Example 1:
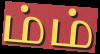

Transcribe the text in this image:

ம்ம்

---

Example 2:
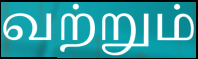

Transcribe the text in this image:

வற்றும்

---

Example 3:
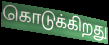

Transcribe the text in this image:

கொடுக்கிறது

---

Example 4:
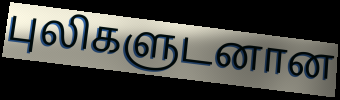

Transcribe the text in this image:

புலிகளுடனான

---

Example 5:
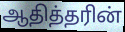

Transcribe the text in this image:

ஆதித்தரின்